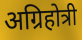
अग्रिहोत्री